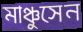
মাঞ্চুসেন